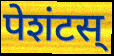
पेशंटस्